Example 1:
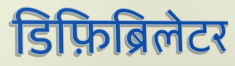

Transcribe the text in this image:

डिफ़िब्रिलेटर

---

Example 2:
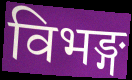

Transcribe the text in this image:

विभङ्ग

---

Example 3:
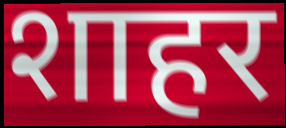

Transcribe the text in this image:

शाहर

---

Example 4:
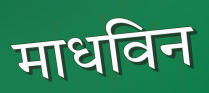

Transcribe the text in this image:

माधविन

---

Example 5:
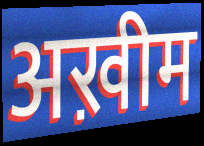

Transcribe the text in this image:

अख़ीम